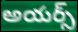
అయర్స్